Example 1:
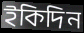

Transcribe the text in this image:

ইকিদিন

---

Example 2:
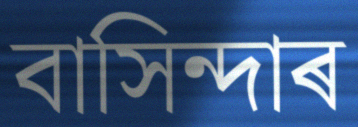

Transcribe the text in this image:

বাসিন্দাৰ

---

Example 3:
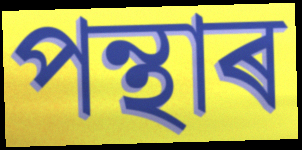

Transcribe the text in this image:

পন্থাৰ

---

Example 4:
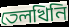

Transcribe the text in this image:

তেলখিনি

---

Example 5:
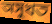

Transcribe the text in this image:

অসুখত